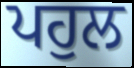
ਪਹੁਲ